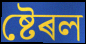
ষ্টেৰল